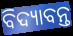
ବିଦ୍ୟାବନ୍ତ